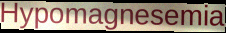
Hypomagnesemia